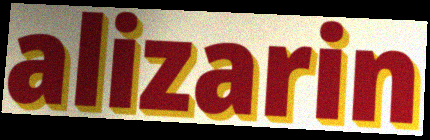
alizarin